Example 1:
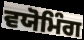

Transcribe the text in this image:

ਵਯੋਮਿੰਗ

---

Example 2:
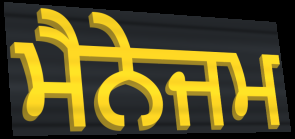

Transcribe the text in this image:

ਮੈਨੇਜਮ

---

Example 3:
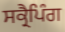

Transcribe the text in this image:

ਸਕ੍ਰੈਪਿੰਗ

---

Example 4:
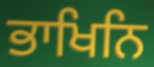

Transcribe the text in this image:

ਭਾਖਿਨਿ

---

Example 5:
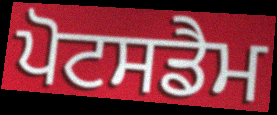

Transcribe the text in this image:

ਪੋਟਸਡੈਮ